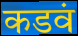
कडवं